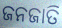
ଜନଜାତି